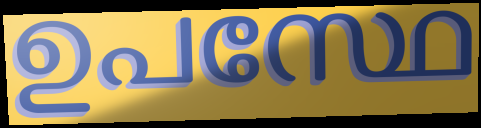
ഉപസ്ഥേ